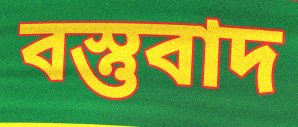
বস্তুবাদ